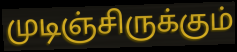
முடிஞ்சிருக்கும்